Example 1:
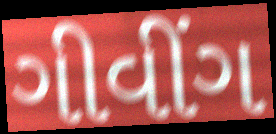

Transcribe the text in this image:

ગીવીંગ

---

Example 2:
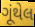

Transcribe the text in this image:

ગૂંથેલ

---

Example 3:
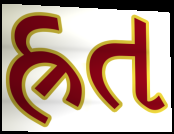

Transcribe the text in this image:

હ્રત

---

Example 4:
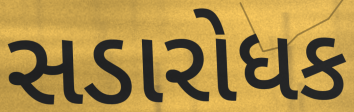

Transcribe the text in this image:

સડારોધક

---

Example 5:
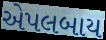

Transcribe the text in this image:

એપલબાય